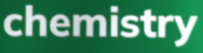
chemistry